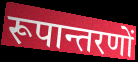
रूपान्तरणों